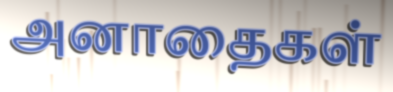
அனாதைகள்